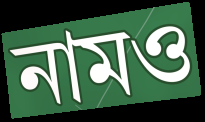
নামও